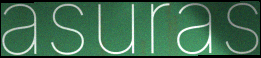
asuras